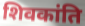
शिवकांति